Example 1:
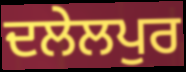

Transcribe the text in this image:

ਦਲੇਲਪੁਰ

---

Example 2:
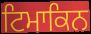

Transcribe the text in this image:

ਟਿਮਾਕਿਨ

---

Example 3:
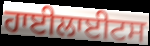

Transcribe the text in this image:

ਹਾਈਲਾਈਟਸ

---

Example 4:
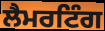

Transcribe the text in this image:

ਲੈਮਰਟਿੰਗ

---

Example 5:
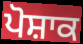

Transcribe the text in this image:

ਪੋਸ਼ਾਕ